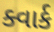
ક્વાર્ક